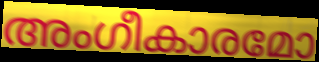
അംഗീകാരമോ